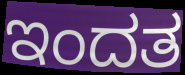
ಇಂದತ